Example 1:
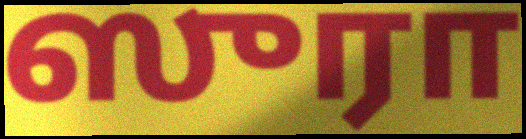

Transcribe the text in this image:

ஸுரா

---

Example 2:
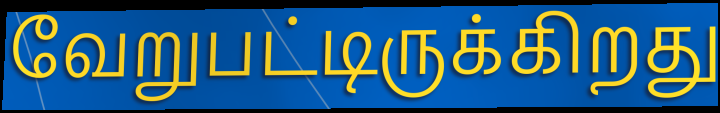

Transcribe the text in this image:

வேறுபட்டிருக்கிறது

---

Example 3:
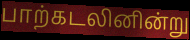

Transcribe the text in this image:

பாற்கடலினின்று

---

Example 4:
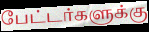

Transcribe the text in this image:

பேட்டர்களுக்கு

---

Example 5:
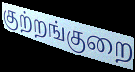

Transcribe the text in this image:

குற்றங்குறை